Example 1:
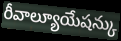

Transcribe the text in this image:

రీవాల్యూయేషన్కు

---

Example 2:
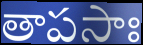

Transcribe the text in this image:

తాపసాః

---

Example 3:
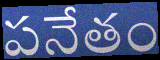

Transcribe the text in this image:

పనేతం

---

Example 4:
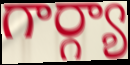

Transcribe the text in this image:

గార్గ్యా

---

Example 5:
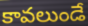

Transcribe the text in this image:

కావలుండే